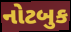
નોટબુક